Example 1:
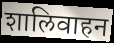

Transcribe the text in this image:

शालिवाहन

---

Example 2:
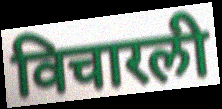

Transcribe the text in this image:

विचारली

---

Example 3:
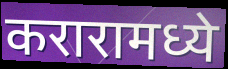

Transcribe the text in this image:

करारामध्ये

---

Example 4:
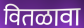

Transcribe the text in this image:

वितळावा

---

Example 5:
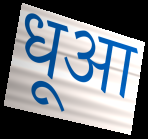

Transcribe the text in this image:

धूआ